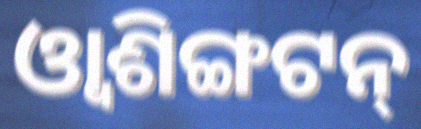
ଓ୍ୱାଶିଙ୍ଗଟନ୍